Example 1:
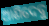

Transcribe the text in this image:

ଆଣିଦେବୁ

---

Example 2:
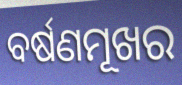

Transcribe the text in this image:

ବର୍ଷଣମୂଖର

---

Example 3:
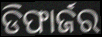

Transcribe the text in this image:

ଡିଫାର୍ଜର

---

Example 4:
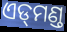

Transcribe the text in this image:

ଏଡ୍‌ମଣ୍ଡ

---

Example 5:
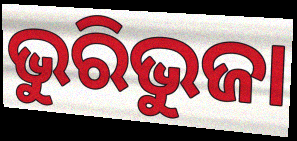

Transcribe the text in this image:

ଭୁରିଭୁଜା